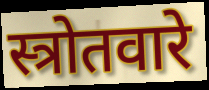
स्त्रोतवारे